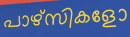
പാഴ്സികളോ